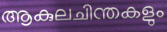
ആകുലചിന്തകളും